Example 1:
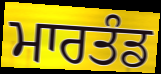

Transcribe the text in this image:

ਮਾਰਤੰਡ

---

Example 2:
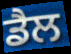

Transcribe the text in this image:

ਡੈਲ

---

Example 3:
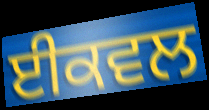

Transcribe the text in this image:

ਈਕਵਲ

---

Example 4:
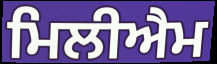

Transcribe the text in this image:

ਮਿਲੀਐਮ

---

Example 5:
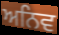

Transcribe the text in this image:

ਅਨਿਵ